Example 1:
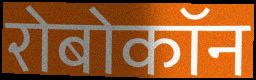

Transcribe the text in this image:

रोबोकॉन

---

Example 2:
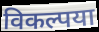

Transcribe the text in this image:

विकल्पया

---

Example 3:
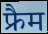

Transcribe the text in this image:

फ्रैम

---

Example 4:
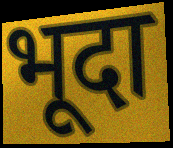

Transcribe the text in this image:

भूदा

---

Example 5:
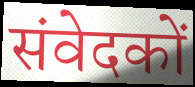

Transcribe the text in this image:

संवेदकों